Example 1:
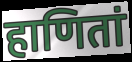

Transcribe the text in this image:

हाणितां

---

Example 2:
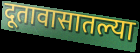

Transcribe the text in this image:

दूतावासातल्या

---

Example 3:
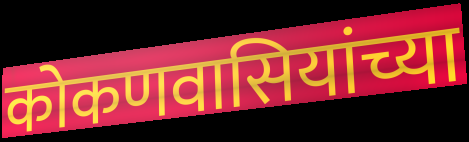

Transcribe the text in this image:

कोकणवासियांच्या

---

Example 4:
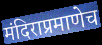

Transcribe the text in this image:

मंदिराप्रमाणेच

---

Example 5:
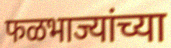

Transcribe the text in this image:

फळभाज्यांच्या